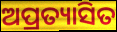
ଅପ୍ରତ୍ୟାସିତ